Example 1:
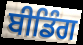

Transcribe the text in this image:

ਬੀਡਿੰਗ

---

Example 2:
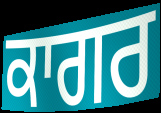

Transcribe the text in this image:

ਕਾਗਰ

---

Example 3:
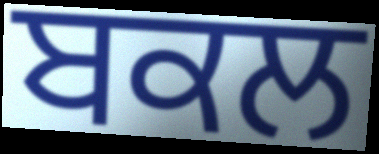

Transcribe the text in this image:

ਬਕਲ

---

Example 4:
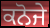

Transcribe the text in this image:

ਕਨੋਜੇ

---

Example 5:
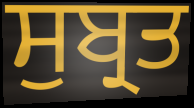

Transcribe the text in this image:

ਸੁਬ੍ਰਤ